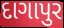
દાગાપુર